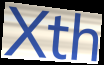
Xth